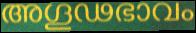
അഗൂഢഭാവം